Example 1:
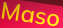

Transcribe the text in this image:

Maso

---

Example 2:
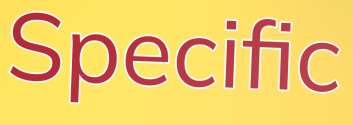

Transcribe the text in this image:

Specific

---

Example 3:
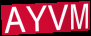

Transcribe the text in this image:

AYVM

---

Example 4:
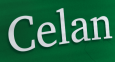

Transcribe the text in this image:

Celan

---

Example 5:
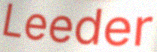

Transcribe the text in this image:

Leeder